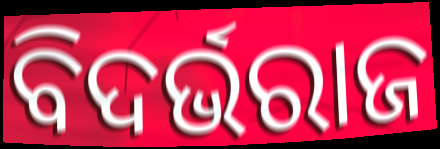
ବିଦର୍ଭରାଜ